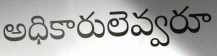
అధికారులెవ్వరూ